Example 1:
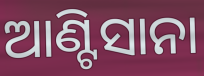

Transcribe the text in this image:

ଆଣ୍ଟିସାନା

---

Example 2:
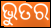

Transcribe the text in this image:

ଭୁତର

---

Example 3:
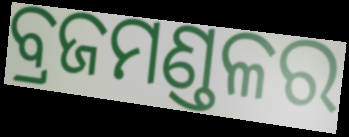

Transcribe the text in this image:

ବ୍ରଜମଣ୍ଡଳର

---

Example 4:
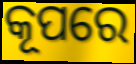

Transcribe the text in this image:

କୂପରେ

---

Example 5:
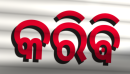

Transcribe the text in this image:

କରିଵି